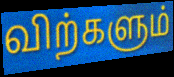
விற்களும்